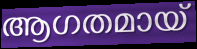
ആഗതമായ്